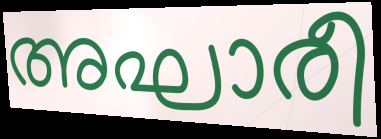
അഘാരീ